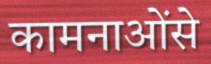
कामनाओंसे